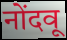
नोंदवू